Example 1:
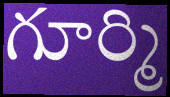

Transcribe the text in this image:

గూర్మి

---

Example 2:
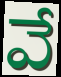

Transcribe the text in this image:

వే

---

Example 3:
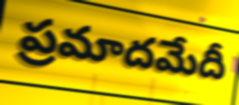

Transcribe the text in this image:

ప్రమాదమేదీ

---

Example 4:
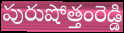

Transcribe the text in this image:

పురుషోత్తంరెడ్డి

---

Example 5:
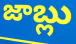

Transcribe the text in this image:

జాబ్లు